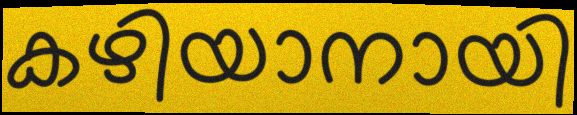
കഴിയാനായി